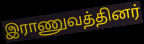
இராணுவத்தினர்